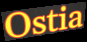
Ostia